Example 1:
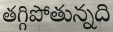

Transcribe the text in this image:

తగ్గిపోతున్నది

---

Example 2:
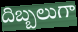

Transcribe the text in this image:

దిబ్బలుగా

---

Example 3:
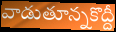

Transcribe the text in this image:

వాడుతూన్నకొద్దీ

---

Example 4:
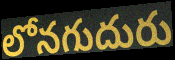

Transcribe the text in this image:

లోనగుదురు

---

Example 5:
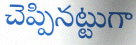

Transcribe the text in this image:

చెప్పినట్టుగా